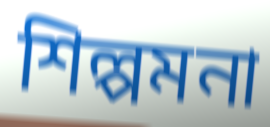
শিল্পমনা